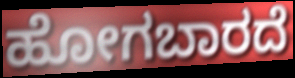
ಹೋಗಬಾರದೆ